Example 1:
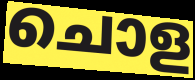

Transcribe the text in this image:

ചൊള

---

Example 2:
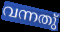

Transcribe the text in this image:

വന്നതു്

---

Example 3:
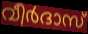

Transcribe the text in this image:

വീർദാസ്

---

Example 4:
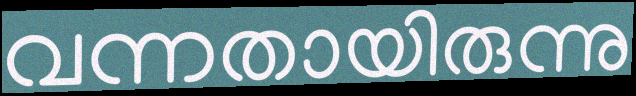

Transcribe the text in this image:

വന്നതായിരുന്നു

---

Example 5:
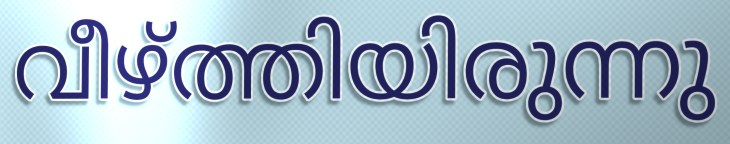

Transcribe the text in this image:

വീഴ്ത്തിയിരുന്നു